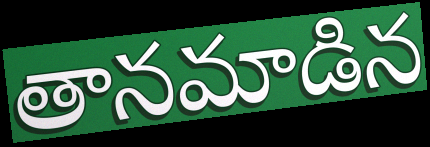
తానమాడిన